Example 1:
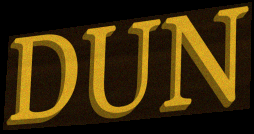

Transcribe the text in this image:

DUN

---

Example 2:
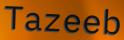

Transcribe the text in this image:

Tazeeb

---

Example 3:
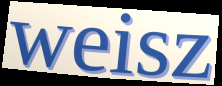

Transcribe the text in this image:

weisz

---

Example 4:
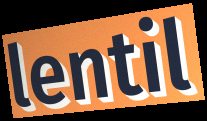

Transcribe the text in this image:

lentil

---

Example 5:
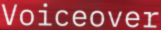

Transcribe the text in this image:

Voiceover